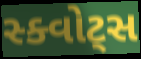
સ્ક્વોટ્સ